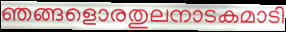
ഞങ്ങളൊരതുലനാടകമാടി